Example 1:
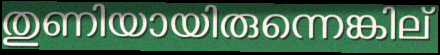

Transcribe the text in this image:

തുണിയായിരുന്നെങ്കില്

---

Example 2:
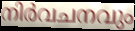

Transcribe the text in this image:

നിർവചനവും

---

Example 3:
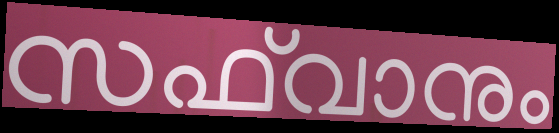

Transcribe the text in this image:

സഫ്‌വാനും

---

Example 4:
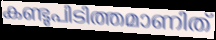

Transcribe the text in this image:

കണ്ടുപിടിത്തമാണിത്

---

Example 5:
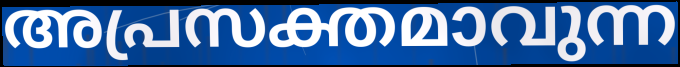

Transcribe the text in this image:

അപ്രസക്തമാവുന്ന